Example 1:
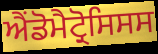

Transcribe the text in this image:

ਐਂਡੋਮੈਟ੍ਰੋਸਿਸਸ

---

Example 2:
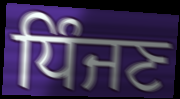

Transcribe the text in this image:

ਧਿੰਜਣ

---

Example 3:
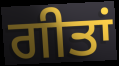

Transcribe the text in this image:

ਗੀਤਾਂ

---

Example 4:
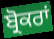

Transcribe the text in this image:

ਬ੍ਰੋਕਰਾਂ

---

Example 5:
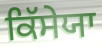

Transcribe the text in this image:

ਕਿੱਸੇਯਾ